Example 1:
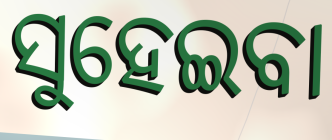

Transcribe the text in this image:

ସୁହେଇବା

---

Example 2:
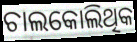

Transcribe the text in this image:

ଚାଲକୋଲିଥିକ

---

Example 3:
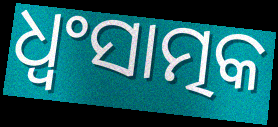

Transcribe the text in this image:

ଧ୍ଵଂସାତ୍ମକ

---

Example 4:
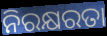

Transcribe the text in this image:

ନିରକ୍ଷରତା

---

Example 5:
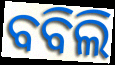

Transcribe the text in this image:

ବବିଲି